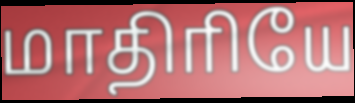
மாதிரியே